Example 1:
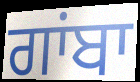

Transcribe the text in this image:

ਗਾਂਬਾ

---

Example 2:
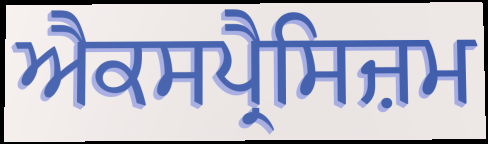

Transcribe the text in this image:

ਐਕਸਪ੍ਰੈਸਿਜ਼ਮ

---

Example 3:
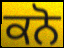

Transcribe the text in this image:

ਕਨੋ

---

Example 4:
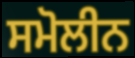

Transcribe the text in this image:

ਸਮੋਲੀਨ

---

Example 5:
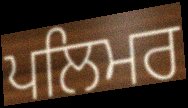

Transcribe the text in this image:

ਪਲਿਮਰ